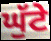
ਘੁੱਟੇ